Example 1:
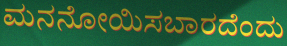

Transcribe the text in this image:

ಮನನೋಯಿಸಬಾರದೆಂದು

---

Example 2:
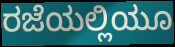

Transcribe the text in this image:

ರಜೆಯಲ್ಲಿಯೂ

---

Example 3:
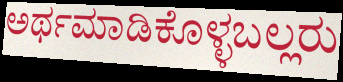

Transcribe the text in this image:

ಅರ್ಥಮಾಡಿಕೊಳ್ಳಬಲ್ಲರು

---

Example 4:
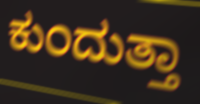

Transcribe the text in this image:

ಕುಂದುತ್ತಾ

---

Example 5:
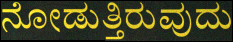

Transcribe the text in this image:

ನೋಡುತ್ತಿರುವುದು